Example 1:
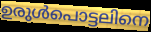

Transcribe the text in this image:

ഉരുൾപൊട്ടലിനെ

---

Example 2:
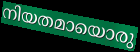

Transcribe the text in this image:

നിയതമായൊരു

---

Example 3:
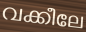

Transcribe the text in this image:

വക്കീലേ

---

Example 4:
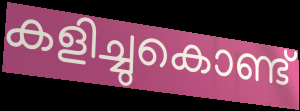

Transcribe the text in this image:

കളിച്ചുകൊണ്ട്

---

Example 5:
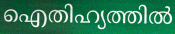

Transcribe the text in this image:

ഐതിഹ്യത്തിൽ